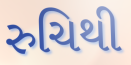
રુચિથી